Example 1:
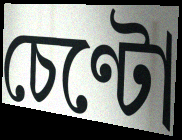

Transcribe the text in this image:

চেণ্টো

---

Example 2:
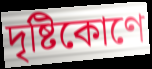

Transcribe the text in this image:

দৃষ্টিকোণে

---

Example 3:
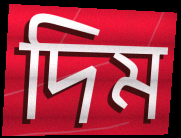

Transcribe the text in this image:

দিম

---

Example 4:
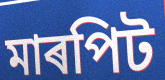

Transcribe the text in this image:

মাৰপিট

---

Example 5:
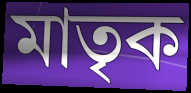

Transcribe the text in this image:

মাতৃক